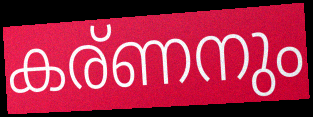
കര്ണനും